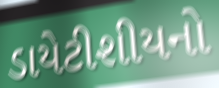
ડાયેટીશીયનો